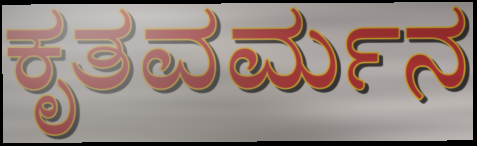
ಕೃತವರ್ಮನ